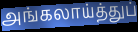
அங்கலாய்த்துப்